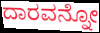
ದಾರವನ್ನೋ